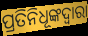
ପ୍ରତିନିଧୂଙ୍କଦ୍ଵାରା